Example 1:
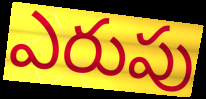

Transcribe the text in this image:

ఎరుపు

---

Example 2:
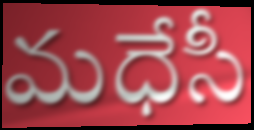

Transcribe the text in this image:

మధేసీ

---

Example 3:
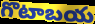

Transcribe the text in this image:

గొటాబయ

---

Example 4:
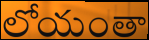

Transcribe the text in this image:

లోయంతా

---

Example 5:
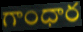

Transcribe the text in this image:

గాంధార